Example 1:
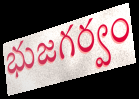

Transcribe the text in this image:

భుజగర్వం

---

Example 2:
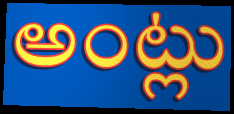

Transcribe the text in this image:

అంట్లు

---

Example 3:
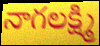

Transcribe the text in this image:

నాగలక్ష్మి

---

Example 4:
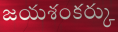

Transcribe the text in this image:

జయశంకర్కు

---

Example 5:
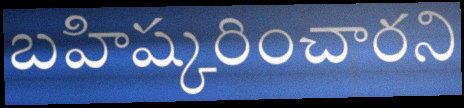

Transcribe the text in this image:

బహిష్కరించారని